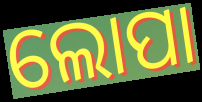
ଲୋପା